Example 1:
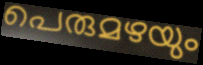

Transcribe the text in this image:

പെരുമഴയും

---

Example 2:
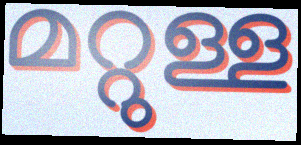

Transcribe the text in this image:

മറ്റുള്ള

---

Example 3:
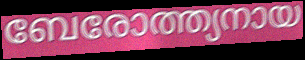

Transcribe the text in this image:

ബേരോത്ത്യനായ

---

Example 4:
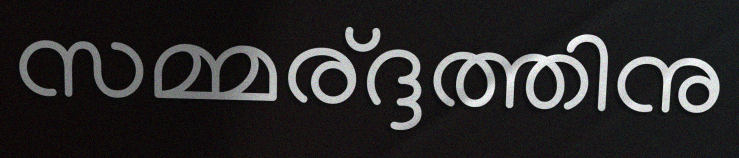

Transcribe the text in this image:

സമ്മര്ദ്ദത്തിനു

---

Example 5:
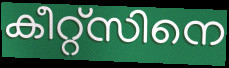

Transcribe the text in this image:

കീറ്റ്സിനെ